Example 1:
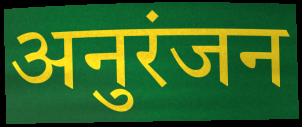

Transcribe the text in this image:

अनुरंजन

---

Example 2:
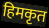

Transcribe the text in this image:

हिमकृत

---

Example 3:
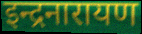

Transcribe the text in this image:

इन्द्रनारायण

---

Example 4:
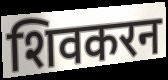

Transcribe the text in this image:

शिवकरन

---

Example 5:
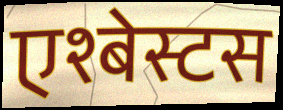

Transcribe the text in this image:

एश्बेस्टस